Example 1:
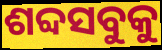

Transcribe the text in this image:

ଶବ୍ଦସବୁକୁ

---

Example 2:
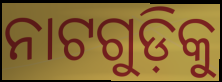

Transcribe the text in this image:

ନାଟଗୁଡ଼ିକୁ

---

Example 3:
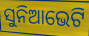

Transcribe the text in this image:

ସୁନିଆଭେଟି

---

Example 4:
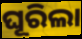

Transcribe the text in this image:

ଘୂରିଲା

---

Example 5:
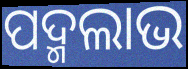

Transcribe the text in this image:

ପଦ୍ମଲାଭ